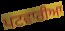
ਪਟਵਾਰੀਆ